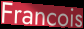
Francois